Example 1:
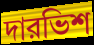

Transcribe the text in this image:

দারভিশ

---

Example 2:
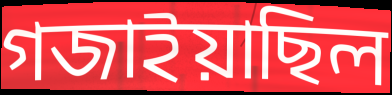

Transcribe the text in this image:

গজাইয়াছিল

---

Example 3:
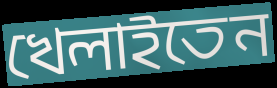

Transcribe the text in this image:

খেলাইতেন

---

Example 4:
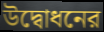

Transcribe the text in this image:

উদ্বোধনের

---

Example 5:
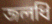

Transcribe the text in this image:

জলধি